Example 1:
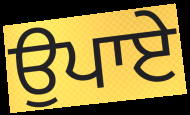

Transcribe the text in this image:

ਉਪਾਏ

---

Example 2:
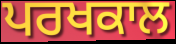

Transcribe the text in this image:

ਪਰਖਕਾਲ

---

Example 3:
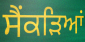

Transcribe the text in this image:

ਸੈਂਕੜਿਆਂ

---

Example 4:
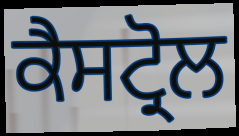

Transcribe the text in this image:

ਕੈਸਟ੍ਰੋਲ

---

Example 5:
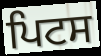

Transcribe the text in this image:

ਪਿਟਸ